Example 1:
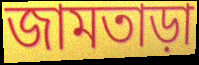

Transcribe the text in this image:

জামতাড়া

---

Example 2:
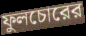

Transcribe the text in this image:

ফুলচোরের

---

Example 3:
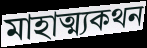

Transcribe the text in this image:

মাহাত্ম্যকথন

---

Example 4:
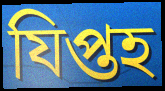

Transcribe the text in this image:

যিপ্তহ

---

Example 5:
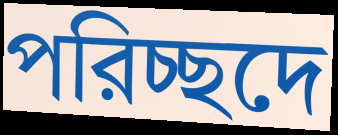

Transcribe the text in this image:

পরিচ্ছদে